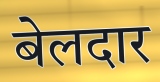
बेलदार